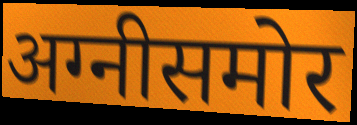
अग्नीसमोर